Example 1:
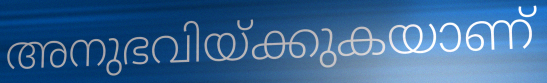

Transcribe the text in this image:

അനുഭവിയ്ക്കുകയാണ്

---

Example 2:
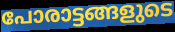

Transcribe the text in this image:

പോരാട്ടങ്ങളുടെ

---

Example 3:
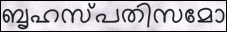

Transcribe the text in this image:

ബൃഹസ്പതിസമോ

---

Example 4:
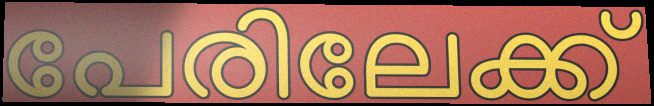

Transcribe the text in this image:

പേരിലേക്ക്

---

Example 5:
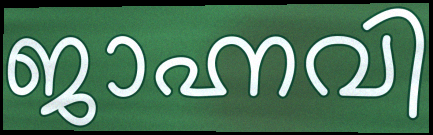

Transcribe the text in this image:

ജാഹ്നവി